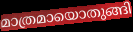
മാത്രമായൊതുങ്ങി